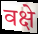
वक्षे